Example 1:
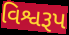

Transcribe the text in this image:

વિશ્વરૂપ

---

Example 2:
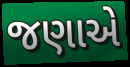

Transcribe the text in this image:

જણાએ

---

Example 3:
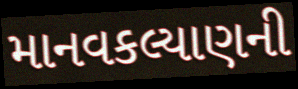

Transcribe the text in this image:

માનવકલ્યાણની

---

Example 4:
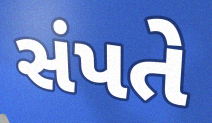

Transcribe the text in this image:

સંપતે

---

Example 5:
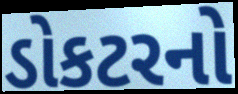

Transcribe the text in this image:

ડોકટરનો